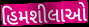
હિમશીલાઓ